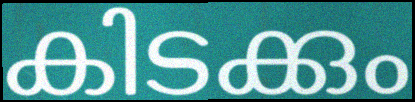
കിടക്കും